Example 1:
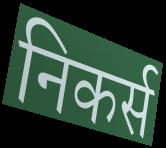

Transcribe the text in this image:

निकर्स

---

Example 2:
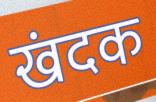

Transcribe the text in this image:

खंदक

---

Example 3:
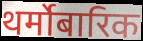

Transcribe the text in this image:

थर्मोबारिक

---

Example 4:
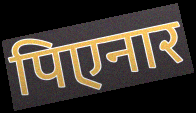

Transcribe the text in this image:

पिएनार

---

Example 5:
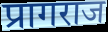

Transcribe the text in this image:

प्रागराज